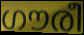
ഗൗരീ